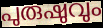
പുരുഷുവും